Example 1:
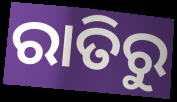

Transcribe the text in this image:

ରାତିରୁ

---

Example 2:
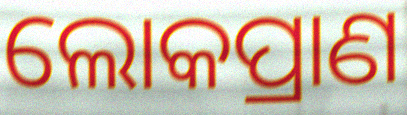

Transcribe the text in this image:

ଲୋକପ୍ରାଣ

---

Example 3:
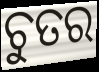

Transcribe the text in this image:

ଚୁତର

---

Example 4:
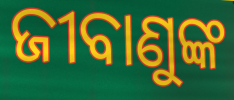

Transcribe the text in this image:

ଜୀବାଣୁଙ୍କ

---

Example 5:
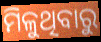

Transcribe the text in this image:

ମିଳୁଥିବାରୁ